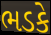
ભડકે